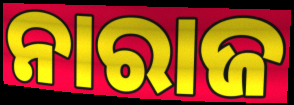
ନାରାଜ